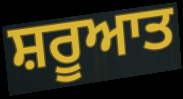
ਸ਼ਰੂਆਤ